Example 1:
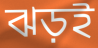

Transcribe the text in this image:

ঝড়ই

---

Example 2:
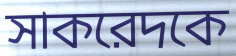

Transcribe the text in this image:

সাকরেদকে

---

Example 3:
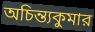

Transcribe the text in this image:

অচিন্ত্যকুমার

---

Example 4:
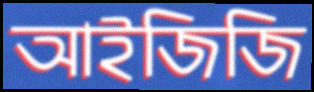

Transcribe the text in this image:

আইজিজি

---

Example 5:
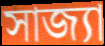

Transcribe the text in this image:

সাজ্যা